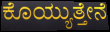
ಕೊಯ್ಯುತ್ತೇನೆ